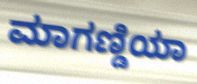
ಮಾಗಣ್ಡಿಯಾ